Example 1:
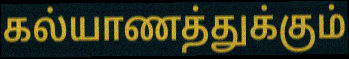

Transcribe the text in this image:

கல்யாணத்துக்கும்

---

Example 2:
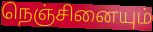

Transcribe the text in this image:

நெஞ்சினையும்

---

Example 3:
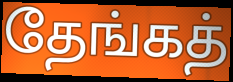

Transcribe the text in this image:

தேங்கத்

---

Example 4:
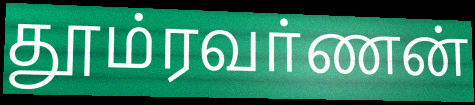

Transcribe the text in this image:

தூம்ரவர்ணன்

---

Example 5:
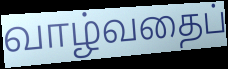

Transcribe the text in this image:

வாழ்வதைப்